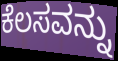
ಕೆಲಸವನ್ನು